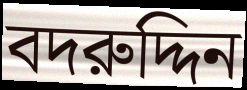
বদরুদ্দিন